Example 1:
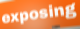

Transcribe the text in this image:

exposing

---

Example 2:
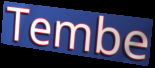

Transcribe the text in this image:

Tembe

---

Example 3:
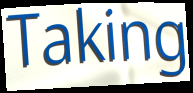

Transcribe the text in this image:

Taking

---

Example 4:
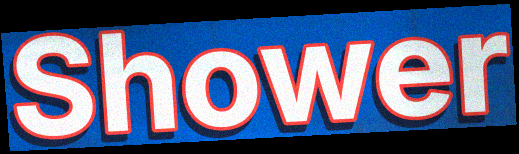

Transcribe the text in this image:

Shower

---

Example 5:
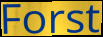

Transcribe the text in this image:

Forst